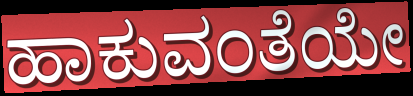
ಹಾಕುವಂತೆಯೇ